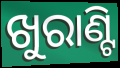
ଖୁରାଣ୍ଟି